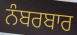
ਨੰਬਰਬਾਰ